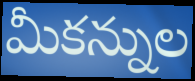
మీకన్నుల